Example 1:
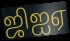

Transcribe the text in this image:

ஜிஐஏ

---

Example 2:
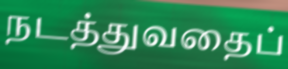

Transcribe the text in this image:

நடத்துவதைப்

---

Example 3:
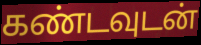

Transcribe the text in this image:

கண்டவுடன்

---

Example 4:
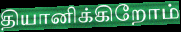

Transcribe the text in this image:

தியானிக்கிறோம்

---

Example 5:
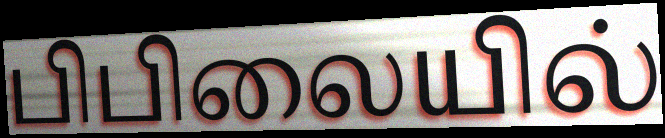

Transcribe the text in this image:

பிபிலையில்